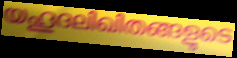
യഹൂദലിഖിതങ്ങളുടെ